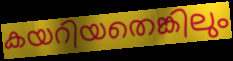
കയറിയതെങ്കിലും